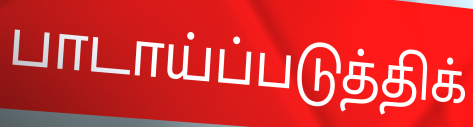
பாடாய்ப்படுத்திக்